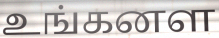
உங்கனள